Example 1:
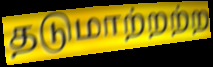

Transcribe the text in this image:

தடுமாற்றற்ற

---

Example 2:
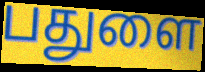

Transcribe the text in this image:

பதுளை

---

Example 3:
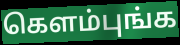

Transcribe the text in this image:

கெளம்புங்க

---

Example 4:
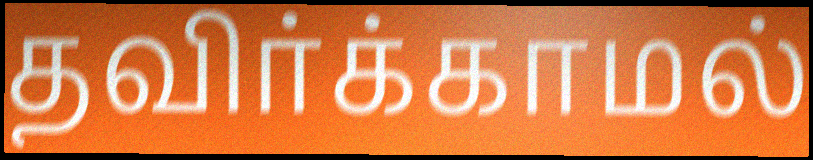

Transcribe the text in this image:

தவிர்க்காமல்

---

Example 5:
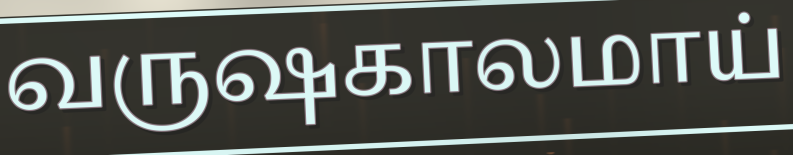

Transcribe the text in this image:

வருஷகாலமாய்